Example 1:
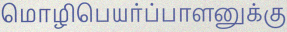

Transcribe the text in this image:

மொழிபெயர்ப்பாளனுக்கு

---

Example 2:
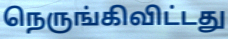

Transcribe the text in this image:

நெருங்கிவிட்டது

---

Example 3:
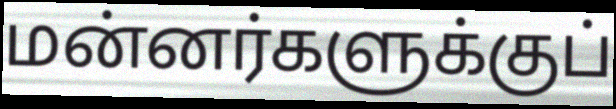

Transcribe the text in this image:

மன்னர்களுக்குப்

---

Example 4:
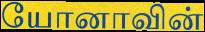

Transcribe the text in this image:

யோனாவின்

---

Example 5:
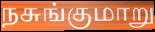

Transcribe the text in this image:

நசுங்குமாறு